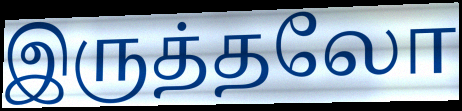
இருத்தலோ